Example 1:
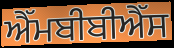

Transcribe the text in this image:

ਐੱਮਬੀਬੀਐੱਸ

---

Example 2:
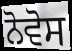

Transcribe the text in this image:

ਨੋਵੋਸ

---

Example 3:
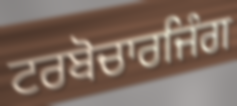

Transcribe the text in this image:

ਟਰਬੋਚਾਰਜਿੰਗ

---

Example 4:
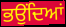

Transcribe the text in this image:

ਭਉਂਦਿਆਂ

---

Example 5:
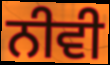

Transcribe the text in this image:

ਨੀਵੀ